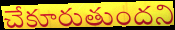
చేకూరుతుందని